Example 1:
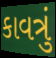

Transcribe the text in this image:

કાવત્રું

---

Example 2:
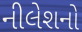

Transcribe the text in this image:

નીલેશનો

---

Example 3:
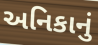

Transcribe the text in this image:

અનિકાનું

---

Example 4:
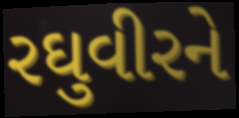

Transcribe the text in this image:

રઘુવીરને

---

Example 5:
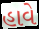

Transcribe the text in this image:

હાવે